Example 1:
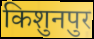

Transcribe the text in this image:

किशुनपुर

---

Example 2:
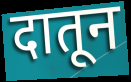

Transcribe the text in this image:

दातून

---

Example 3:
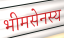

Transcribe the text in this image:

भीमसेनस्य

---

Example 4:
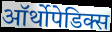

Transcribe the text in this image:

ऑर्थोपेडिक्स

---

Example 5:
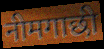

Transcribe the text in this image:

नीमगाछी